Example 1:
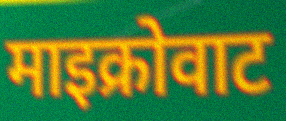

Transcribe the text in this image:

माइक्रोवाट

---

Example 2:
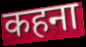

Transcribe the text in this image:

कहना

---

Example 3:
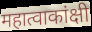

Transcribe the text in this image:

महात्वाकांक्षी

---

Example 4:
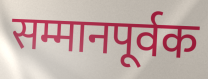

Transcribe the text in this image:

सम्मानपूर्वक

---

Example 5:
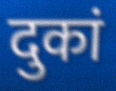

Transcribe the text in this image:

दुकां